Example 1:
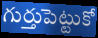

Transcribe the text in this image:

గుర్తుపెట్టుకో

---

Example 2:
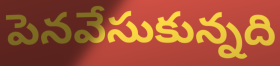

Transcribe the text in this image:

పెనవేసుకున్నది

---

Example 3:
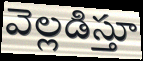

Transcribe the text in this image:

వెల్లడిస్తూ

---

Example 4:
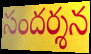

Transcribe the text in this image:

సందర్శన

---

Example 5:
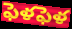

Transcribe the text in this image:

ఫెళఫెళ